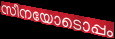
സീനയോടൊപ്പം